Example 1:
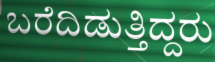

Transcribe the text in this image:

ಬರೆದಿಡುತ್ತಿದ್ದರು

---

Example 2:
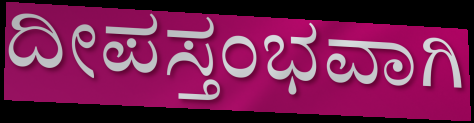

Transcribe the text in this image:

ದೀಪಸ್ತಂಭವಾಗಿ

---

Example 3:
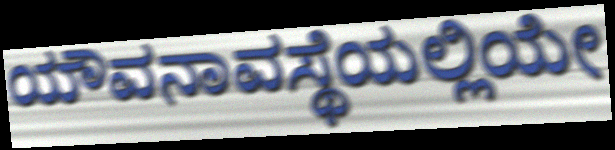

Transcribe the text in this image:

ಯೌವನಾವಸ್ಥೆಯಲ್ಲಿಯೇ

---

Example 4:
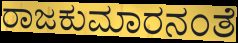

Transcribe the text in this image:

ರಾಜಕುಮಾರನಂತೆ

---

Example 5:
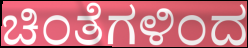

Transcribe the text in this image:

ಚಿಂತೆಗಳಿಂದ